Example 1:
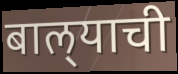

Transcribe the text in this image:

बाल्याची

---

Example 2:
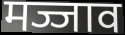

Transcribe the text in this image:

मज्जाव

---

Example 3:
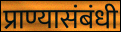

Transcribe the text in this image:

प्राण्यासंबंधी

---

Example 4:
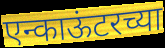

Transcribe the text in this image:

एन्काऊंटरच्या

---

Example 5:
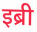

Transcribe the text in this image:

इब्री